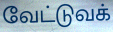
வேட்டுவக்